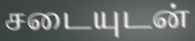
சடையுடன்